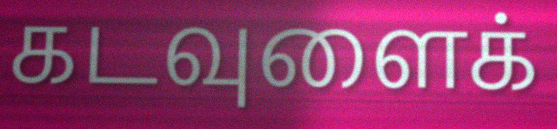
கடவுளைக்